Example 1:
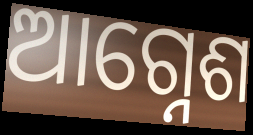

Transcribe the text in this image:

ଆଗ୍ନେଶ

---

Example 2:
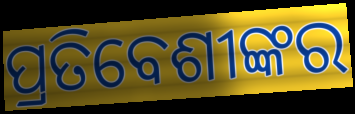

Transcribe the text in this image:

ପ୍ରତିବେଶୀଙ୍କର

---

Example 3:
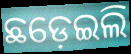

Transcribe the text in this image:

ଛଡ଼େଇଲି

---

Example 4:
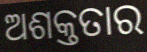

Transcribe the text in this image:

ଅଶକ୍ତତାର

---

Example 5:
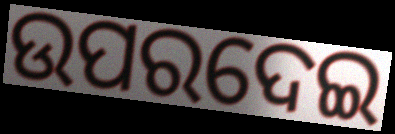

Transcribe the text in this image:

ଉପରଦେଇ